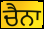
ਚੈਨਾ